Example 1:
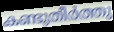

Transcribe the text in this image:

കണ്ടുതീർത്തു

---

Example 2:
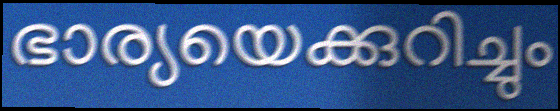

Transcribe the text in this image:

ഭാര്യയെക്കുറിച്ചും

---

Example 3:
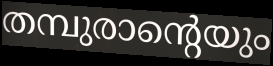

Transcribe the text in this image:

തമ്പുരാന്റെയും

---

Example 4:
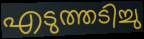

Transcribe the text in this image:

എടുത്തടിച്ചു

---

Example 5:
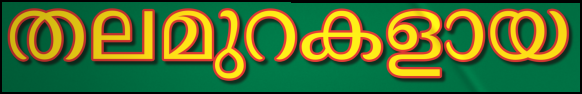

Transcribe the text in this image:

തലമുറകളായ